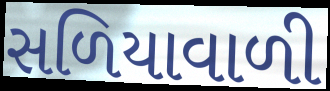
સળિયાવાળી